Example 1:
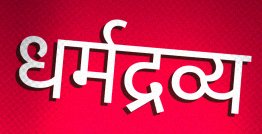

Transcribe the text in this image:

धर्मद्रव्य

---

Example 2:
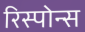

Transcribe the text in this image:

रिस्पोन्स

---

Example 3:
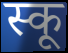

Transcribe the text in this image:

स्कू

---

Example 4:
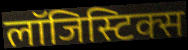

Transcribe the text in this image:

लॉजिस्टिक्‍स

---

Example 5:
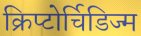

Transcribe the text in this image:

क्रिप्टोर्चिडिज्म